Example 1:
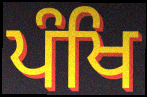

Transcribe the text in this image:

ਪੰਖਿ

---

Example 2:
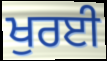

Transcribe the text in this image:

ਖੁਰਈ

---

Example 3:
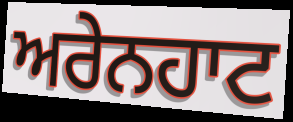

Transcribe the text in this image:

ਅਰੇਨਹਾਟ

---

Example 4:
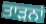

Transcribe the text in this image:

ਤਾੜਨਾਂ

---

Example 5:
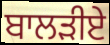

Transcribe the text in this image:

ਬਾਲੜੀਏ